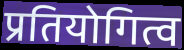
प्रतियोगित्व